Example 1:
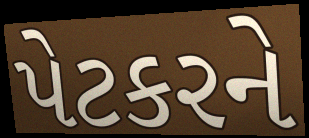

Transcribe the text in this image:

પેટકરને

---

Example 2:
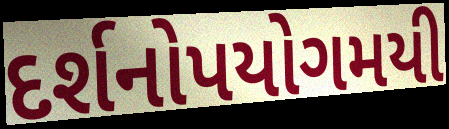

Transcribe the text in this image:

દર્શનોપયોગમયી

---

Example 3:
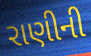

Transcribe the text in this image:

રાણીની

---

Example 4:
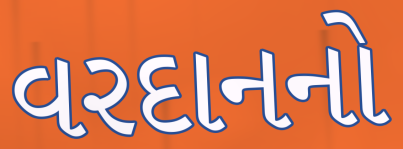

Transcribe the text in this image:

વરદાનનો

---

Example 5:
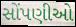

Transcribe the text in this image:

સોંપણીઓ